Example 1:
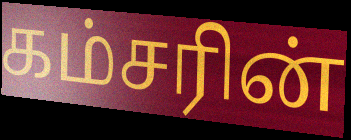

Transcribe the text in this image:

கம்சரின்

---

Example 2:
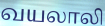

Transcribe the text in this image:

வயலாலி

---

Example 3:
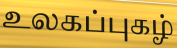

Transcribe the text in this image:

உலகப்புகழ்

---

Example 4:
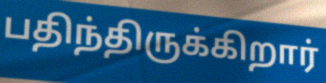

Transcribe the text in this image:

பதிந்திருக்கிறார்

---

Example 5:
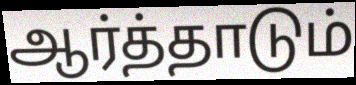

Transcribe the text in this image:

ஆர்த்தாடும்